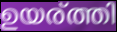
ഉയര്ത്തി